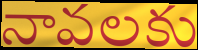
నావలకు